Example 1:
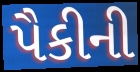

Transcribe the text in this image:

પૈકીની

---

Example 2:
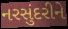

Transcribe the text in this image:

નરસુંદરીને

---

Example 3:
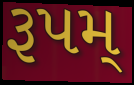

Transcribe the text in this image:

રૂપમ્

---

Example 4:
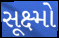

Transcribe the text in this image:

સૂક્ષ્મો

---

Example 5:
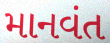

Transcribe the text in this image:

માનવંત